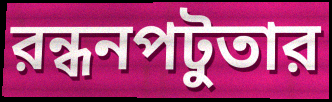
রন্ধনপটুতার